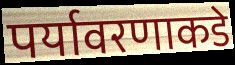
पर्यावरणाकडे